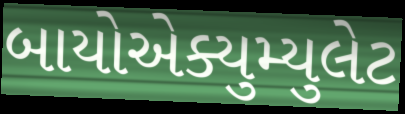
બાયોએક્યુમ્યુલેટ